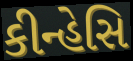
કીન્હેસિ